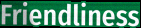
Friendliness